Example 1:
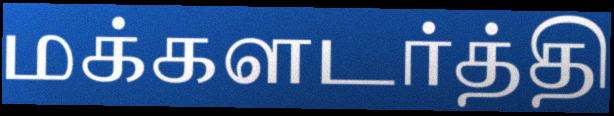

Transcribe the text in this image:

மக்களடர்த்தி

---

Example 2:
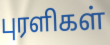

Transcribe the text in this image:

புரளிகள்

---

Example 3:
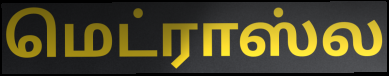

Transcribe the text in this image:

மெட்ராஸ்ல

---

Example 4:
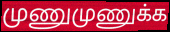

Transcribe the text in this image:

முணுமுணுக்க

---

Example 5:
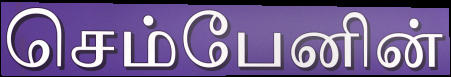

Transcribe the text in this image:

செம்பேனின்